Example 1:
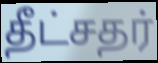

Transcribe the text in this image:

தீட்சதர்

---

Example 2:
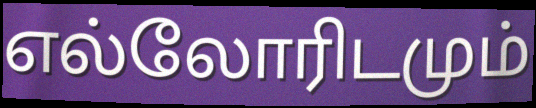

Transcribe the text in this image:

எல்லோரிடமும்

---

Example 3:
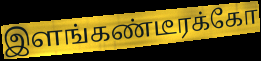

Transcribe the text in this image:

இளங்கண்டீரக்கோ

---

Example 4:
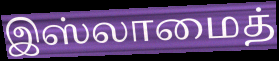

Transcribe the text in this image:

இஸ்லாமைத்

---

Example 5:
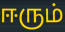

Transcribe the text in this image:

ஈரும்